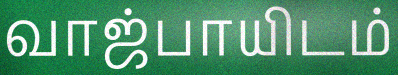
வாஜ்பாயிடம்